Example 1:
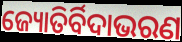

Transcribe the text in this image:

ଜ୍ୟୋତିର୍ବିଦାଭରଣ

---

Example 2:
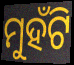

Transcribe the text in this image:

ମୁହଁଟି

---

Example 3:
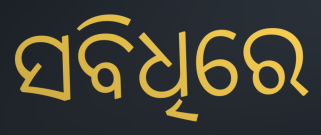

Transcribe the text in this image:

ସବିଧିରେ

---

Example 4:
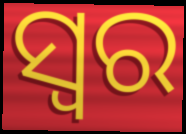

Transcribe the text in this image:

ସ୍ବର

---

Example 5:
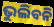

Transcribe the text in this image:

ଭୁଲିବନି